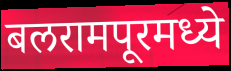
बलरामपूरमध्ये